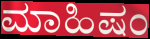
ಮಾಹಿಷಂ